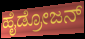
ಹೈಡ್ರೋಜನ್